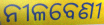
ନୀଳବେଣୀ